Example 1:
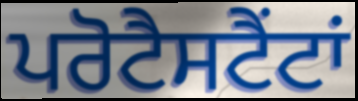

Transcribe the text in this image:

ਪਰੋਟੈਸਟੈਂਟਾਂ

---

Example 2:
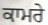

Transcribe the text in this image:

ਕਾਮਰੇ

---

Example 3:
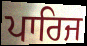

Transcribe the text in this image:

ਪਾਰਿਜ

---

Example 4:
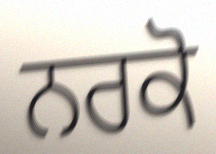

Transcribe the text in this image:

ਨਰਕੋ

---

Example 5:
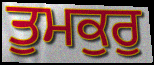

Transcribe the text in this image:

ਤੁਮਕੁਰੁ